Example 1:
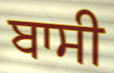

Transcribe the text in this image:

ਬਾਸੀ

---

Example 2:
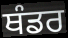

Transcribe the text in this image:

ਥੰਡਰ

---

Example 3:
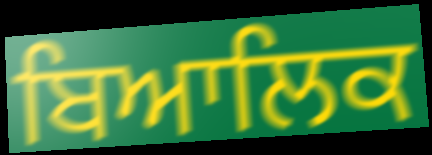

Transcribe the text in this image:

ਬਿਆਲਿਕ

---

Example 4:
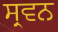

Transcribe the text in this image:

ਸ੍ਰਵਨ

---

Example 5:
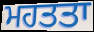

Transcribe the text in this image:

ਮਹਤਤਾ